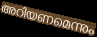
അറിയണമെന്നും